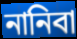
নানিবা